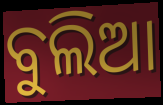
ବୁଲିଆ